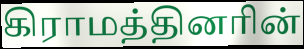
கிராமத்தினரின்